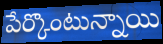
పేర్కొంటున్నాయి